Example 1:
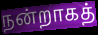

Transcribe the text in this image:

நன்றாகத்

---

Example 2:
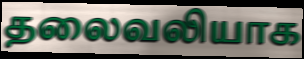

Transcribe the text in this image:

தலைவலியாக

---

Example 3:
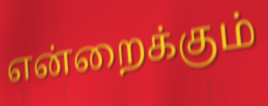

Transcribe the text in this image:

என்றைக்கும்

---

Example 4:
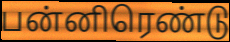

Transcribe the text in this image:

பன்னிரெண்டு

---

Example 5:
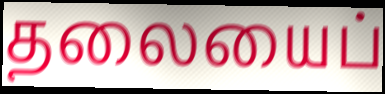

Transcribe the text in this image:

தலையைப்